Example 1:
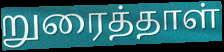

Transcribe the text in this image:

றுரைத்தாள்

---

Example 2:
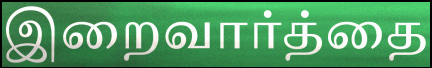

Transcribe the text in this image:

இறைவார்த்தை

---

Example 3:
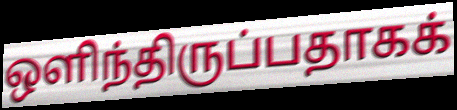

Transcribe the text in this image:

ஒளிந்திருப்பதாகக்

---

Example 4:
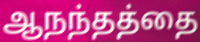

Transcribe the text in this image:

ஆநந்தத்தை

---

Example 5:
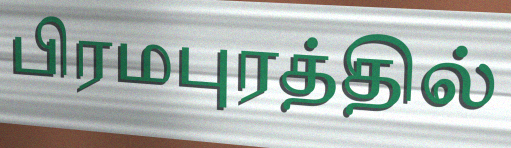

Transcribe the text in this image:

பிரமபுரத்தில்